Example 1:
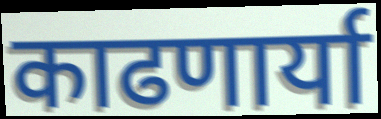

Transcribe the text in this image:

काढणार्या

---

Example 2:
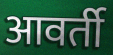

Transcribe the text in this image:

आवर्ती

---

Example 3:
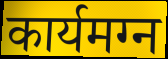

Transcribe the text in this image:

कार्यमग्न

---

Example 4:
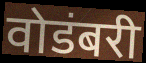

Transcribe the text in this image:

वोडंबरी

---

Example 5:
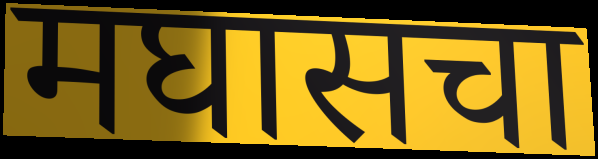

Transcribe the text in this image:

मघासचा